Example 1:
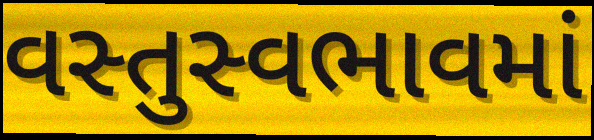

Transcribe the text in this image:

વસ્તુસ્વભાવમાં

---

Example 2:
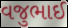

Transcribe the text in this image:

વજુભાઈ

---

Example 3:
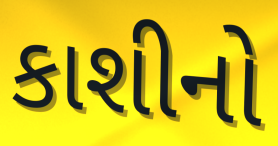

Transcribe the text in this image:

કાશીનો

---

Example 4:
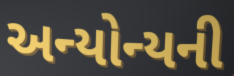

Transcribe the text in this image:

અન્યોન્યની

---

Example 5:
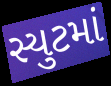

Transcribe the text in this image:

સ્યુટમાં